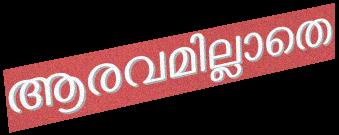
ആരവമില്ലാതെ